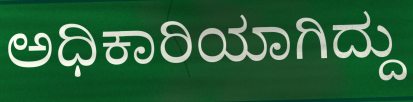
ಅಧಿಕಾರಿಯಾಗಿದ್ದು